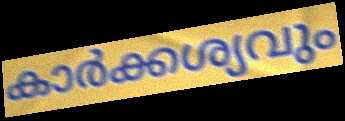
കാർക്കശ്യവും